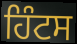
ਹਿੰਟਸ